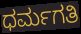
ಧರ್ಮಗತಿ